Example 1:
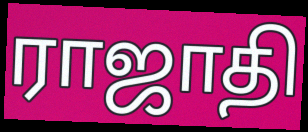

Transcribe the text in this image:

ராஜாதி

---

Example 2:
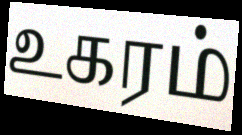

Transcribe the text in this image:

உகரம்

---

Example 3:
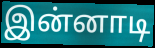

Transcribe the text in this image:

இன்னாடி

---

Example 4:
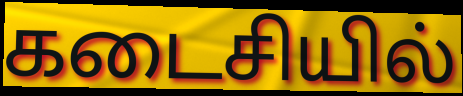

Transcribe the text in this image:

கடைசியில்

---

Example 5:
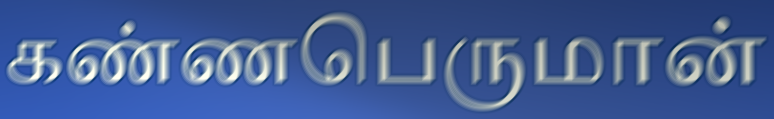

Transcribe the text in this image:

கண்ணபெருமான்